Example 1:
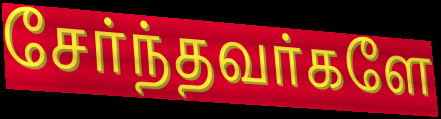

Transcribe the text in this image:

சேர்ந்தவர்களே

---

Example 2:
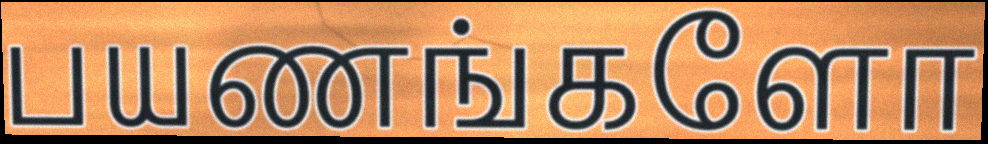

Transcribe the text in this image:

பயணங்களோ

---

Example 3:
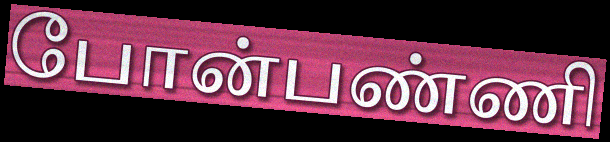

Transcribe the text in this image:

போன்பண்ணி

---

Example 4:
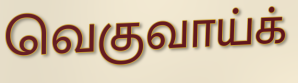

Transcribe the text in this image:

வெகுவாய்க்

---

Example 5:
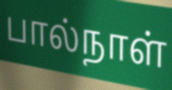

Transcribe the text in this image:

பால்நாள்